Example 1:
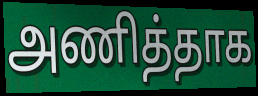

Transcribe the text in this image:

அணித்தாக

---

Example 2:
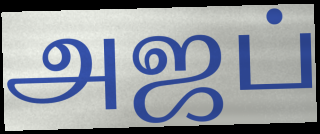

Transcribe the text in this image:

அஜப்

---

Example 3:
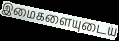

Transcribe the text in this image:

இமைகளையுடைய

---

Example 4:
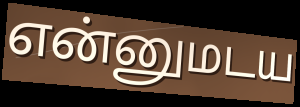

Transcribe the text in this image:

என்னுமடய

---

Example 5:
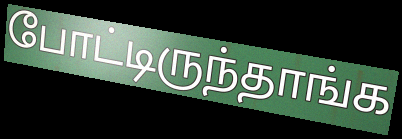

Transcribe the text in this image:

போட்டிருந்தாங்க